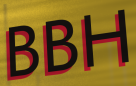
BBH